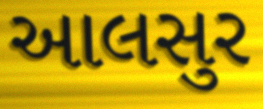
આલસુર